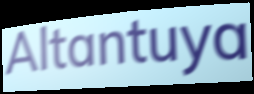
Altantuya